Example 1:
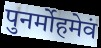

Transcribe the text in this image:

पुनर्मोहमेवं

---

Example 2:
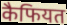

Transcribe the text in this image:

कैफियत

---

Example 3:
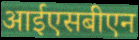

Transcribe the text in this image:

आईएसबीएन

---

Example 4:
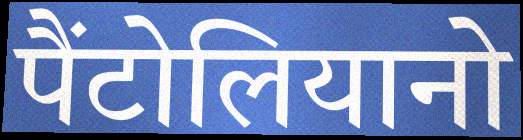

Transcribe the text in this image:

पैंटोलियानो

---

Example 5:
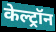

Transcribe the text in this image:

केल्ट्रॉन